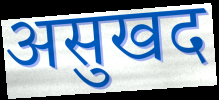
असुखद